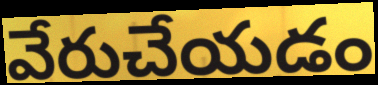
వేరుచేయడం